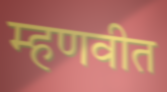
म्हणवीत